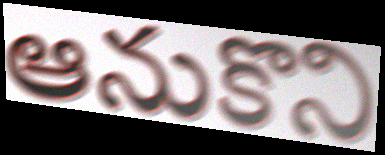
ఆనుకొని